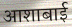
आशाबाई